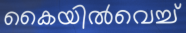
കൈയിൽവെച്ച്